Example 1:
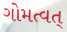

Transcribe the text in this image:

ગોમત્વત્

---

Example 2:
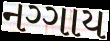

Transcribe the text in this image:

નગ્ગાય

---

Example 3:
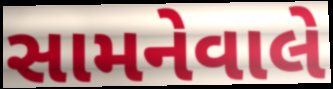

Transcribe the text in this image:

સામનેવાલે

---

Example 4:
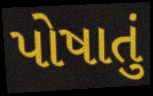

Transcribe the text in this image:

પોષાતું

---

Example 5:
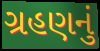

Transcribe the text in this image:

ગ્રહણનું